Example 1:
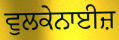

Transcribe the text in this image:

ਵੁਲਕੇਨਾਈਜ਼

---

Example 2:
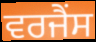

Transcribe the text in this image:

ਵਰਜੈਂਸ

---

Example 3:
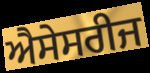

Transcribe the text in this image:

ਐਸੇਸਰੀਜ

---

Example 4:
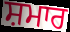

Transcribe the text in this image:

ਸ਼ਮਾਰ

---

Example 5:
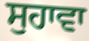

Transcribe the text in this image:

ਸੁਹਾਵਾ